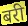
बरी